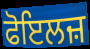
ਫੋਇਲਜ਼